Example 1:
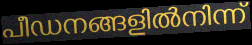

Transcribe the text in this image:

പീഡനങ്ങളിൽനിന്ന്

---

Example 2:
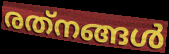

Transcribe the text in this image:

രത്‌നങ്ങൾ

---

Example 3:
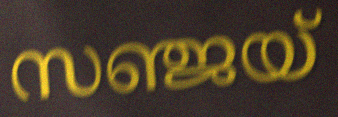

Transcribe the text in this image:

സഞ്ജയ്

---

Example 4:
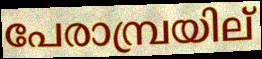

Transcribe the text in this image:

പേരാമ്പ്രയില്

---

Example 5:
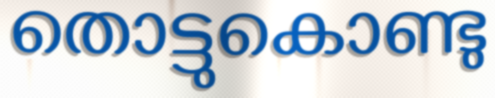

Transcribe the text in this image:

തൊട്ടുകൊണ്ടു